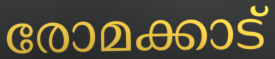
രോമക്കാട്